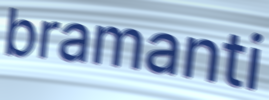
bramanti